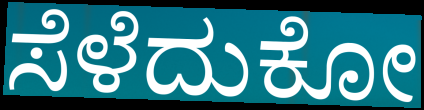
ಸೆಳೆದುಕೋ